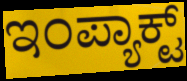
ಇಂಪ್ಯಾಕ್ಟ್